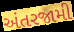
અંતરજામી